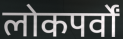
लोकपर्वों